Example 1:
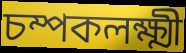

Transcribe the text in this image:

চম্পকলক্ষ্মী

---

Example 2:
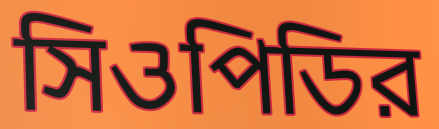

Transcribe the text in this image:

সিওপিডির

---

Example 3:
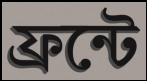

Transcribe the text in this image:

ফ্রন্টে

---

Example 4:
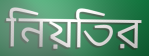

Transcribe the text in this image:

নিয়তির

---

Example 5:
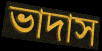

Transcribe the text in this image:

ভাদাস